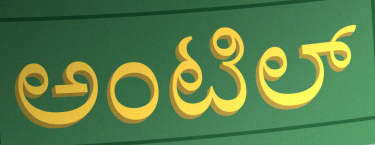
ಅಂಟಿಲ್